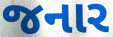
જનાર